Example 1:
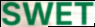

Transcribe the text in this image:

SWET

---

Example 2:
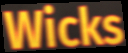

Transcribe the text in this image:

Wicks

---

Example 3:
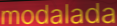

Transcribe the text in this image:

modalada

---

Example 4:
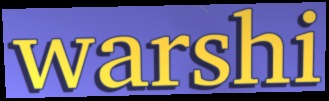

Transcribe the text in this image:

warshi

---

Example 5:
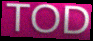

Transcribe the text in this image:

TOD